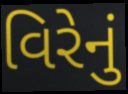
વિરેનું